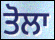
ਤੋਲਾ